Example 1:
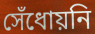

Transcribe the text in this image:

সেঁধোয়নি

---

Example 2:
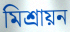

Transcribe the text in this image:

মিশ্রায়ন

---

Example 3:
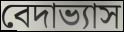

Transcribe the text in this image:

বেদাভ্যাস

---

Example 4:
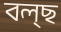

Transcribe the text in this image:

বল্‌ছ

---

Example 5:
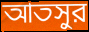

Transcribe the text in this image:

আতসুর